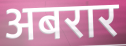
अबरार